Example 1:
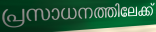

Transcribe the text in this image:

പ്രസാധനത്തിലേക്ക്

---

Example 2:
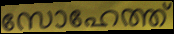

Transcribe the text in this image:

സോഹേത്ത്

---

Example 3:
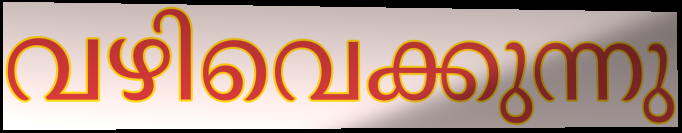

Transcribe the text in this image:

വഴിവെക്കുന്നു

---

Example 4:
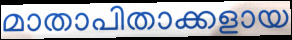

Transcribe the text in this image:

മാതാപിതാക്കളായ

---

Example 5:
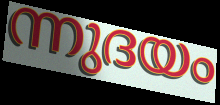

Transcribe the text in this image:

ന്നുദയം